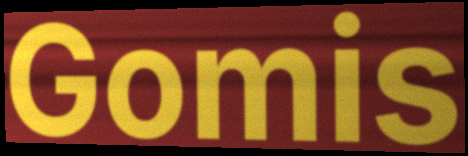
Gomis